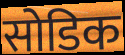
सोडिक